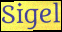
Sigel